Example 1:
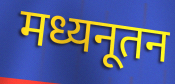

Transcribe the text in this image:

मध्यनूतन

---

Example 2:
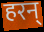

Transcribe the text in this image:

हरन्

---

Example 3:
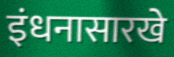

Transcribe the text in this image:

इंधनासारखे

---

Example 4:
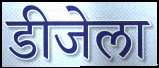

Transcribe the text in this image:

डीजेला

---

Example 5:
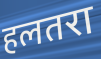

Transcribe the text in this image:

हलतरा